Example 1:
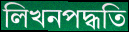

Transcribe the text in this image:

লিখনপদ্ধতি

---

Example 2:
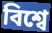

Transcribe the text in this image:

বিশ্বে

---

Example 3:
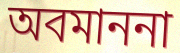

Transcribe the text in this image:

অবমাননা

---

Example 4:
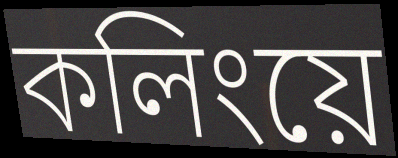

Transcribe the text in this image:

কলিংয়ে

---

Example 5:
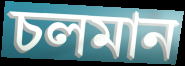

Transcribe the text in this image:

চলমান